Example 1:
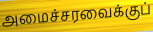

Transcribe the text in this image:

அமைச்சரவைக்குப்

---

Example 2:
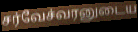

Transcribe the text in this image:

சர்வேச்வரனுடைய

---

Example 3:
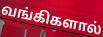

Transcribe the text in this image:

வங்கிகளால்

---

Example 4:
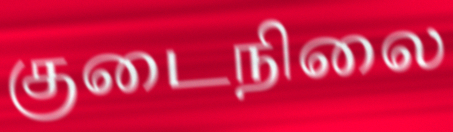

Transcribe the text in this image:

குடைநிலை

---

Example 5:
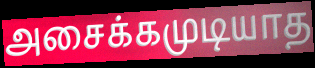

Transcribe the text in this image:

அசைக்கமுடியாத